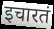
इचारतं